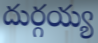
దుర్గయ్య